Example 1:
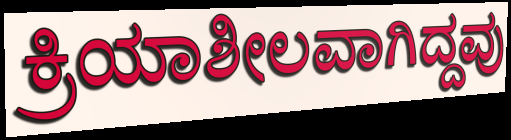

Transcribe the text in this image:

ಕ್ರಿಯಾಶೀಲವಾಗಿದ್ದವು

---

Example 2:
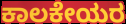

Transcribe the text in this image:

ಕಾಲಕೇಯರ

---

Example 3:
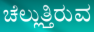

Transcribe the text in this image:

ಚೆಲ್ಲುತ್ತಿರುವ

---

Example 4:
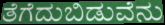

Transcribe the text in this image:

ತೆಗೆದುಬಿಡುವೆನು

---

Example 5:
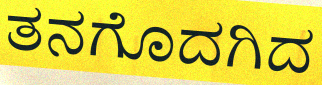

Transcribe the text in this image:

ತನಗೊದಗಿದ